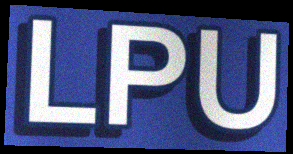
LPU